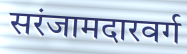
सरंजामदारवर्ग